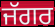
ਜੱਗਰ